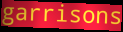
garrisons